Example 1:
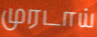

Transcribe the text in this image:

முரடாய்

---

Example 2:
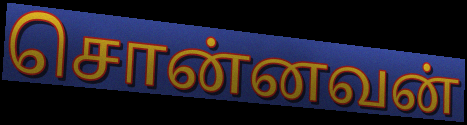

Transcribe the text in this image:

சொன்னவன்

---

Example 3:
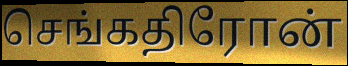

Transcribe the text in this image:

செங்கதிரோன்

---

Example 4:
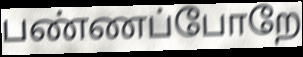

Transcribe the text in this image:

பண்ணப்போறே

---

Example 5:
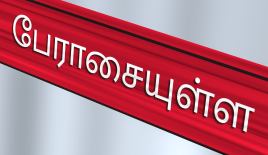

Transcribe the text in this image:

பேராசையுள்ள